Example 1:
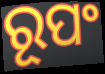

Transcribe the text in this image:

ରୂପଂ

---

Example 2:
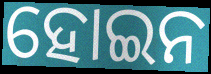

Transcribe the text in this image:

ହୋଇନ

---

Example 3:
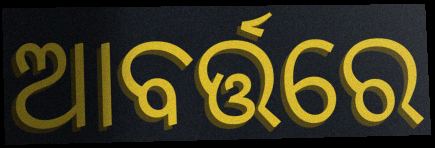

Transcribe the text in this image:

ଆବର୍ତ୍ତରେ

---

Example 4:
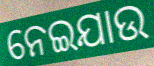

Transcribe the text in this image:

ନେଇଯାଉ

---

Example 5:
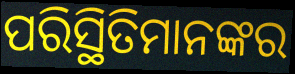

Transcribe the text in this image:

ପରିସ୍ଥିତିମାନଙ୍କର